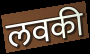
लवकी